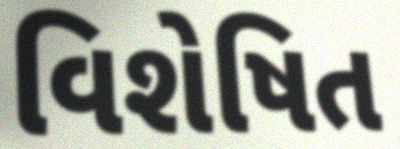
વિશેષિત